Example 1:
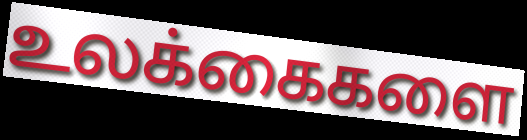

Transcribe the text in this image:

உலக்கைகளை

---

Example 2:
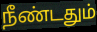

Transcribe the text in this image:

நீண்டதும்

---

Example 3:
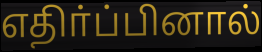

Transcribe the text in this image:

எதிர்ப்பினால்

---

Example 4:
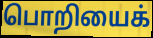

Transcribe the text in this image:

பொறியைக்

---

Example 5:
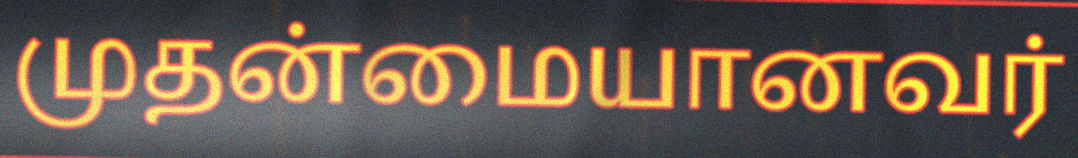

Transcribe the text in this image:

முதன்மையானவர்